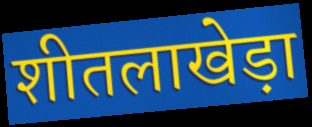
शीतलाखेड़ा